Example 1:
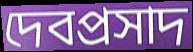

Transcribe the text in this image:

দেবপ্রসাদ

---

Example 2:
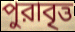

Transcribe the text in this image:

পুরাবৃত্ত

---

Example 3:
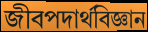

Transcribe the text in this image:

জীবপদার্থবিজ্ঞান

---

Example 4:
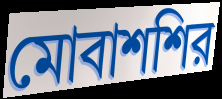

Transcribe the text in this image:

মোবাশশির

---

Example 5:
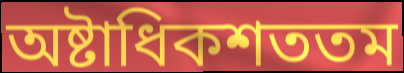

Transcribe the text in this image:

অষ্টাধিকশততম